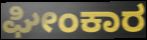
ಘೀಂಕಾರ